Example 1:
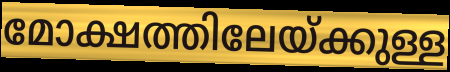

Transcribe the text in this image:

മോക്ഷത്തിലേയ്ക്കുള്ള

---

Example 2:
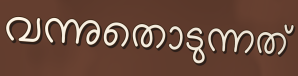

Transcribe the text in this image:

വന്നുതൊടുന്നത്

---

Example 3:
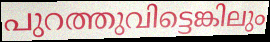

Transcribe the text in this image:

പുറത്തുവിട്ടെങ്കിലും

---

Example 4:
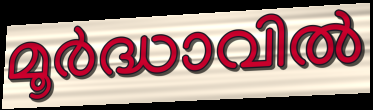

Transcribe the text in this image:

മൂർദ്ധാവിൽ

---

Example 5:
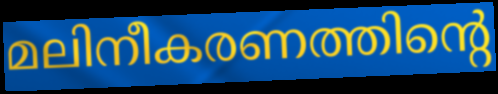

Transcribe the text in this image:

മലിനീകരണത്തിന്റെ